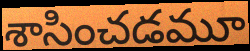
శాసించడమూ